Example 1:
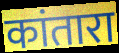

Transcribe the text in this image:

कांतारा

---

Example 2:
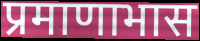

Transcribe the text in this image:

प्रमाणाभास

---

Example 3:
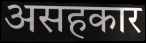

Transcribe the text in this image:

असहकार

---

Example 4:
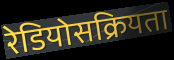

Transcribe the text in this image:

रेडियोसक्रियता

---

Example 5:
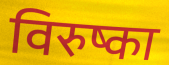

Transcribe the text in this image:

विरुष्का